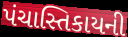
પંચાસ્તિકાયની